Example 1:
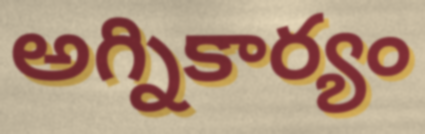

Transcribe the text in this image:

అగ్నికార్యం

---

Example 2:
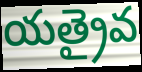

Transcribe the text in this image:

యత్రైవ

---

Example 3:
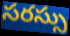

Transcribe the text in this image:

సరస్సు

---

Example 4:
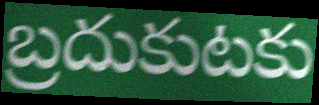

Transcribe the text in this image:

బ్రదుకుటకు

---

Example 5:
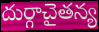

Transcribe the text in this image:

దుర్గాచైతన్య